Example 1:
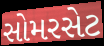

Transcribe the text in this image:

સોમરસેટ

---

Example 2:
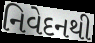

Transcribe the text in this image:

નિવેદનથી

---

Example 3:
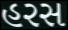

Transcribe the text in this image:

હરસ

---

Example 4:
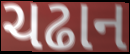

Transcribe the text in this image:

ચઢાન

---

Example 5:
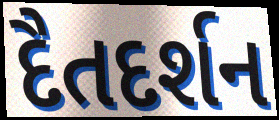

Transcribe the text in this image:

દૈતદર્શન